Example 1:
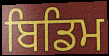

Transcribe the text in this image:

ਬਿਡਿਮ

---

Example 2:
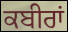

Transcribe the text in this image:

ਕਬੀਰਾਂ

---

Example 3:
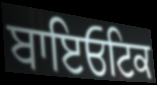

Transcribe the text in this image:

ਬਾਇਓਟਿਕ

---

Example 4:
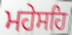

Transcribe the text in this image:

ਮਹੇਸਹਿ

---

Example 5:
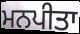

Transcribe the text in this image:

ਮਨਪੀਤਾ